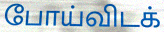
போய்விடக்